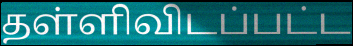
தள்ளிவிடப்பட்ட